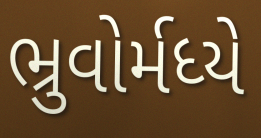
ભ્રુવોર્મધ્યે